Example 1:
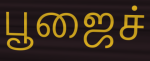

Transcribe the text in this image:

பூஜைச்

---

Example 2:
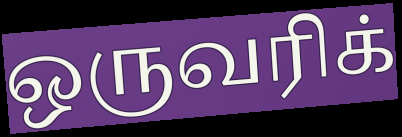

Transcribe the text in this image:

ஒருவரிக்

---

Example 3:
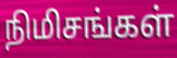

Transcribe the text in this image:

நிமிசங்கள்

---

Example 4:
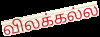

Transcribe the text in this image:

விலக்கல்ல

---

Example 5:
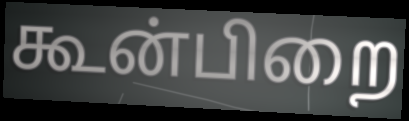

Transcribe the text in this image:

கூன்பிறை